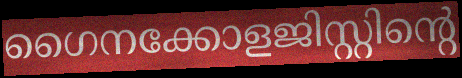
ഗൈനക്കോളജിസ്റ്റിന്റെ